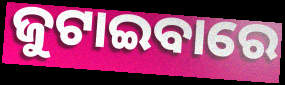
ଜୁଟାଇବାରେ